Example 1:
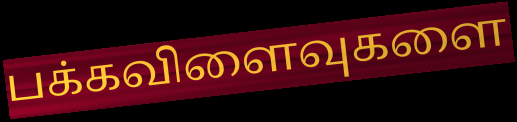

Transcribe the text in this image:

பக்கவிளைவுகளை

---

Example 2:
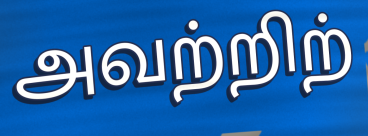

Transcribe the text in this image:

அவற்றிற்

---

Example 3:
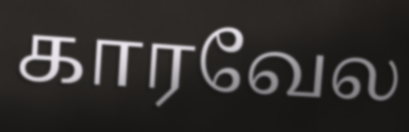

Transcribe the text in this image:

காரவேல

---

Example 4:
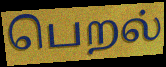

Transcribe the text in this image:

பெறல்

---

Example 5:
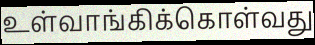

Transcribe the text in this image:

உள்வாங்கிக்கொள்வது